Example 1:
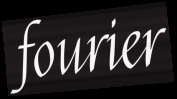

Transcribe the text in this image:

fourier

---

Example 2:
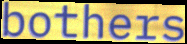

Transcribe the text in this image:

bothers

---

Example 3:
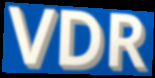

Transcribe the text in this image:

VDR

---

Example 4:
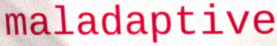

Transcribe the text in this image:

maladaptive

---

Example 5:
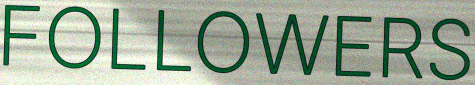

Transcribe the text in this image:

FOLLOWERS